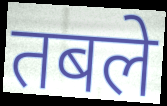
तबले